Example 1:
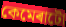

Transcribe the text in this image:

কেমেৰাটো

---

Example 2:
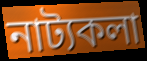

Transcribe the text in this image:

নাট্যকলা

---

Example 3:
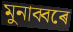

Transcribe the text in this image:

মুনাব্বৰে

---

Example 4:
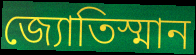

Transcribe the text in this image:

জ্যোতিস্মান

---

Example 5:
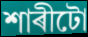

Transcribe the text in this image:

শাৰীটো